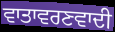
ਵਾਤਾਵਰਣਵਾਦੀ